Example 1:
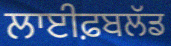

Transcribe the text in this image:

ਲਾਈਫ਼ਬਲੱਡ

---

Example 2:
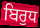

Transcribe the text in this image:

ਬਿਰੁਧ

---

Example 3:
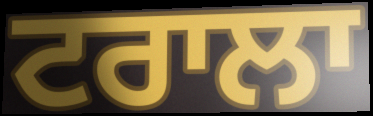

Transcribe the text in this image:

ਟਰਾਲਾ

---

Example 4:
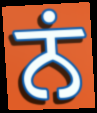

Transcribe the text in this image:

ਨਂ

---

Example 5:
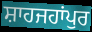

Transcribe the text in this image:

ਸ਼ਾਹਜਹਾਂਪੁਰ